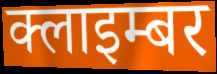
क्लाइम्बर